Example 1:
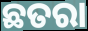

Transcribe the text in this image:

ଛତରା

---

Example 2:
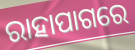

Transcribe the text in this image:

ରାହାପାଗରେ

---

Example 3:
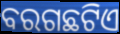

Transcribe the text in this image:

ବରଗଛଟିଏ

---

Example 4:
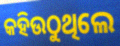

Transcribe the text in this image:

କହିଉଠୁଥିଲେ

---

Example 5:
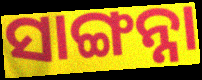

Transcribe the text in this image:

ସାଙ୍ଗନ୍ନା